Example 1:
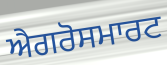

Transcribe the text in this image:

ਐਗਰੋਸਮਾਰਟ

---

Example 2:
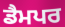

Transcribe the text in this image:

ਡੈਮਪਰ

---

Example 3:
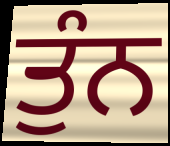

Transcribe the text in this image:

ਤੁੰਨ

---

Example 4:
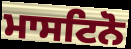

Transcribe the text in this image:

ਮਾਸਟਿਨੋ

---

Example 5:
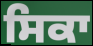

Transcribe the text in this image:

ਸਿਕਾ